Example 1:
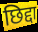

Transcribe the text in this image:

छिद्दा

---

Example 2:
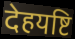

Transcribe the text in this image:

देहयष्टि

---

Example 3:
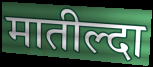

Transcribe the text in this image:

मातील्‍दा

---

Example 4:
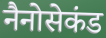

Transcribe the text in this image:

नैनोसेकंड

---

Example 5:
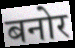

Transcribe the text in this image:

बनोर